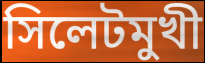
সিলেটমুখী